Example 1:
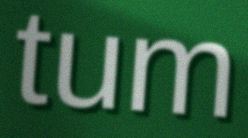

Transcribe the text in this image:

tum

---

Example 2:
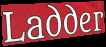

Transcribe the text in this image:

Ladder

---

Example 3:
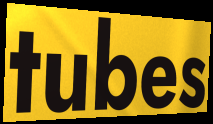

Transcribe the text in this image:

tubes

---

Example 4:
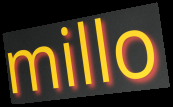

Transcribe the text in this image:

millo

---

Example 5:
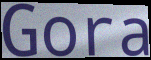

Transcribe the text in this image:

Gora